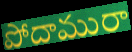
పోదామురా